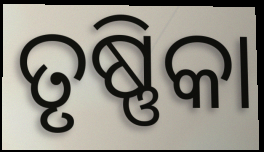
ତୃଷ୍ଣିକା